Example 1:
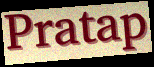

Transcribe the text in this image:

Pratap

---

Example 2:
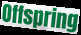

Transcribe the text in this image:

Offspring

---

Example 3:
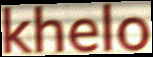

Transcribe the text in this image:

khelo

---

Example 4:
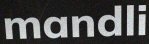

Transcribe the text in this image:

mandli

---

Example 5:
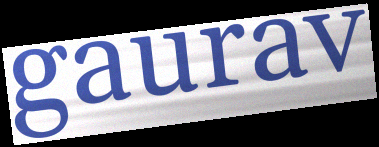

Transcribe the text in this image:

gaurav